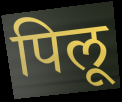
पिलू